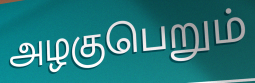
அழகுபெறும்